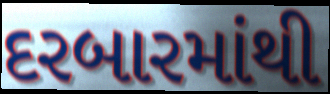
દરબારમાંથી